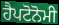
ਹੈਪਟੋਨੋਮੀ